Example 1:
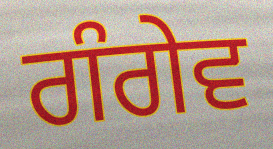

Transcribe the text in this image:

ਗੰਗੇਵ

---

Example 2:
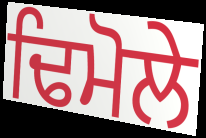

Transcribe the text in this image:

ਢਿਮੋਲੇ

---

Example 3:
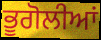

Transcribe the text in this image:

ਭੂਗੋਲੀਆਂ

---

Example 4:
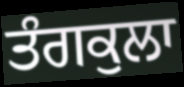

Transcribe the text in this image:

ਤੰਗਕੁਲਾ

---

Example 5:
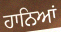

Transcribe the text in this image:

ਹਾਨਿਆਂ